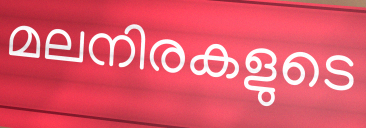
മലനിരകളുടെ